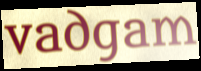
vadgam